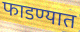
फाडण्यात